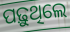
ପଢ଼ୁଥିଲେ